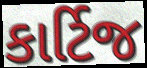
કાર્ટિજ